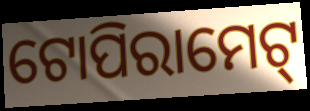
ଟୋପିରାମେଟ୍